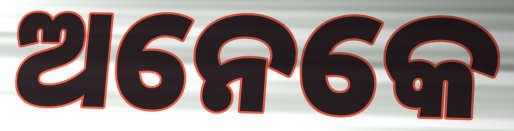
ଅନେକେ